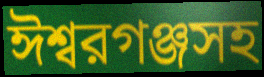
ঈশ্বরগঞ্জসহ